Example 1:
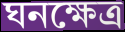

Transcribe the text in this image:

ঘনক্ষেত্র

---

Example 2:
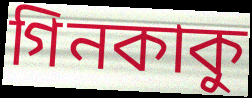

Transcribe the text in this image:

গিনকাকু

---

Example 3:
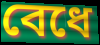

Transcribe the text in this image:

বেধে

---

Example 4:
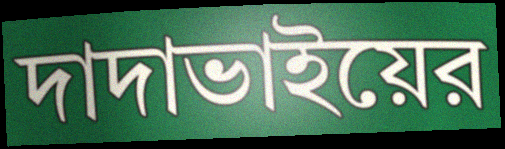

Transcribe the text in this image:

দাদাভাইয়ের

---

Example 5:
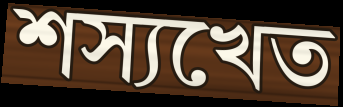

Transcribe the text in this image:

শস্যখেত